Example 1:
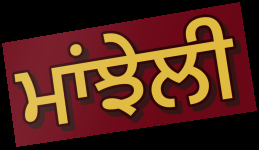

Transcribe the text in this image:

ਮਾਂਝੇਲੀ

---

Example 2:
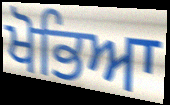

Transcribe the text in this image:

ਖੋਭਿਆ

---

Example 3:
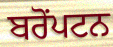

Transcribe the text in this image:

ਬਰੋਂਪਟਨ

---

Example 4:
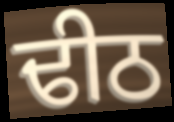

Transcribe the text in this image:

ਢੀਠ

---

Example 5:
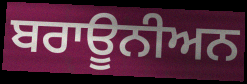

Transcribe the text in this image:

ਬਰਾਊਨੀਅਨ